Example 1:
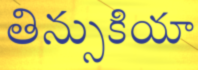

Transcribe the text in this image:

తిన్సుకియా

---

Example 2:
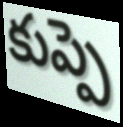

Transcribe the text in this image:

కుప్పె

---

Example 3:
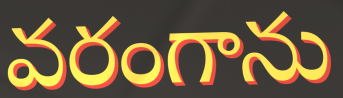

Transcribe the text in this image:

వరంగాను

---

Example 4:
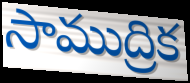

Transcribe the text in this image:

సాముద్రిక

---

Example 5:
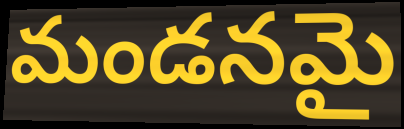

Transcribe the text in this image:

మండనమై